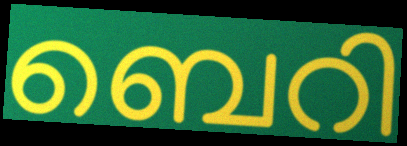
ബെറി